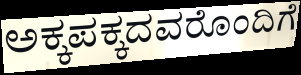
ಅಕ್ಕಪಕ್ಕದವರೊಂದಿಗೆ